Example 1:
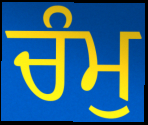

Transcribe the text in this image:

ਚੰਮੁ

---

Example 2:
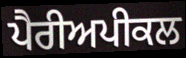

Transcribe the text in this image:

ਪੈਰੀਅਪੀਕਲ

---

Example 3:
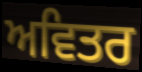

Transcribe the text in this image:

ਅਵਿਤਰ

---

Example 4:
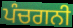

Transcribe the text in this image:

ਪੰਚਗਨੀ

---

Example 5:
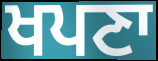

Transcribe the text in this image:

ਖਪਣਾ